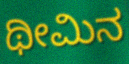
ಥೀಮಿನ